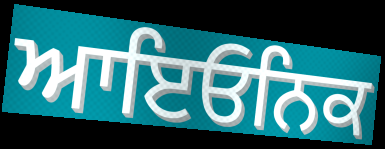
ਆਇਓਨਿਕ